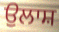
ਉਲਾਸ਼